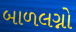
બાળલગ્નો